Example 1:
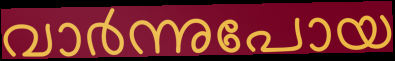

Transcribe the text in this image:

വാർന്നുപോയ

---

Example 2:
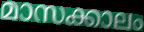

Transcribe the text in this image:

മാസക്കാലം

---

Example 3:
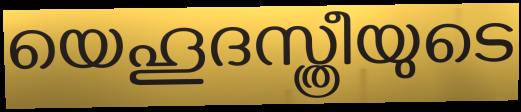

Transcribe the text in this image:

യെഹൂദസ്ത്രീയുടെ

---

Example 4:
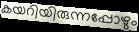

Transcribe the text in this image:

കയറിയിരുന്നപ്പോഴും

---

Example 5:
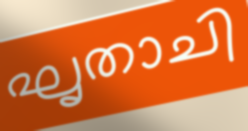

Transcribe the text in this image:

ഘൃതാചി